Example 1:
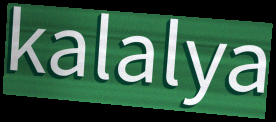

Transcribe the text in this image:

kalalya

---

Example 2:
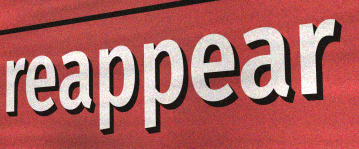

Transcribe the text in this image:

reappear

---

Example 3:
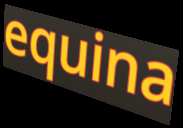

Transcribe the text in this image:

equina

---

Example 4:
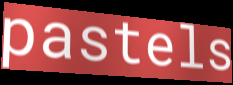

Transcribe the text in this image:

pastels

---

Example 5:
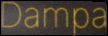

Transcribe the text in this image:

Dampa